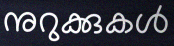
നുറുക്കുകൾ